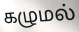
கழுமல்